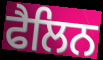
ਫੈਲਿਨ